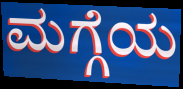
ಮಗ್ಗೆಯ